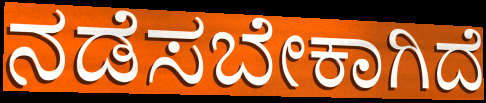
ನಡೆಸಬೇಕಾಗಿದೆ